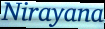
Nirayana